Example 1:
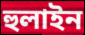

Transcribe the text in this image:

হুলাইন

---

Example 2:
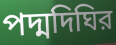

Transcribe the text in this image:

পদ্মদিঘির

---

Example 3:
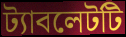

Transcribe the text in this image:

ট্যাবলেটটি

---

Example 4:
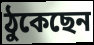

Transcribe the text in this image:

ঠুকেছেন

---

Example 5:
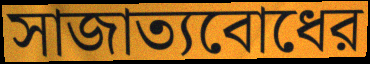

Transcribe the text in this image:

সাজাত্যবোধের